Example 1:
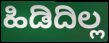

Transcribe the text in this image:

ಹಿಡಿದಿಲ್ಲ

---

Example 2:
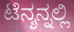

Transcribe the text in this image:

ಟೆನ್ಶನ್ನಲ್ಲಿ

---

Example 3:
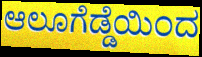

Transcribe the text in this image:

ಆಲೂಗೆಡ್ಡೆಯಿಂದ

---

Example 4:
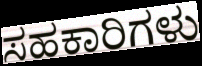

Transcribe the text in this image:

ಸಹಕಾರಿಗಳು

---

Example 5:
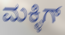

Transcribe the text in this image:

ಮಕ್ಳಿಗ್